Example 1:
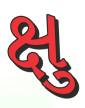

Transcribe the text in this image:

ક્ષુ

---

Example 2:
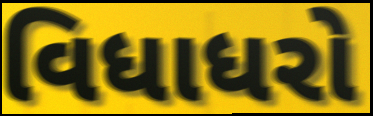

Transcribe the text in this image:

વિધાધરો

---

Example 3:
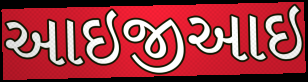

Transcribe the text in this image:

આઇજીઆઇ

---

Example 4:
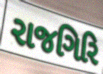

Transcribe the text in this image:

રાજગિરિ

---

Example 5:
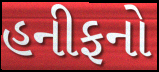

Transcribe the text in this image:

હનીફનો